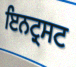
ਇਨਟ੍ਰਸਟ